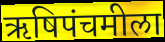
ऋषिपंचमीला